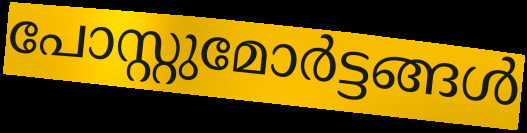
പോസ്റ്റുമോർട്ടങ്ങൾ